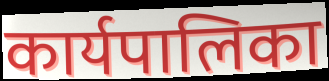
कार्यपालिका